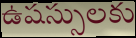
ఉషస్సులకు